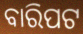
ବାରିପଟ